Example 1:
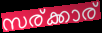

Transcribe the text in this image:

സര്ക്കാര്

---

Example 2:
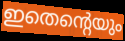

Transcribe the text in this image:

ഇതെന്റെയും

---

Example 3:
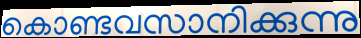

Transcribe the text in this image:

കൊണ്ടവസാനിക്കുന്നു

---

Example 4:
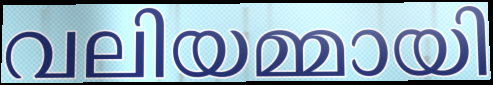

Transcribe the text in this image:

വലിയമ്മായി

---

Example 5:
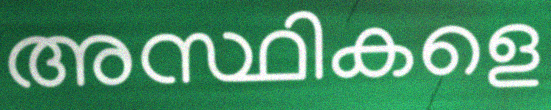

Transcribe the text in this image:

അസ്ഥികളെ